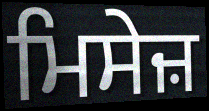
ਮਿਸੇਜ਼